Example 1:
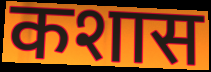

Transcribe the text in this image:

कशास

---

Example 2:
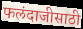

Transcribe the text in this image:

फलंदाजीसाठी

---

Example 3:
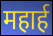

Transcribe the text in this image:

महार्ह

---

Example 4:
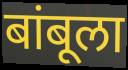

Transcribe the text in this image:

बांबूला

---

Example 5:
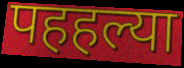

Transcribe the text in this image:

पहहल्या